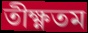
তীক্ষ্ণতম